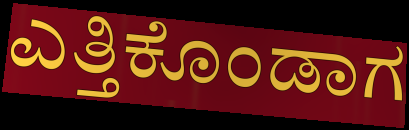
ಎತ್ತಿಕೊಂಡಾಗ